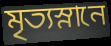
মৃত্যস্নানে